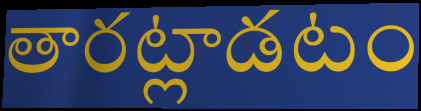
తారట్లాడటం